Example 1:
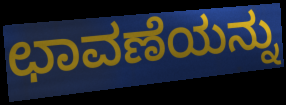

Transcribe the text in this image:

ಛಾವಣೆಯನ್ನು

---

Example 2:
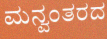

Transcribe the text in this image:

ಮನ್ವಂತರದ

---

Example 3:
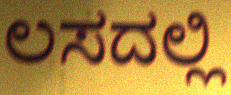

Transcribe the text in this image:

ಲಸದಲ್ಲಿ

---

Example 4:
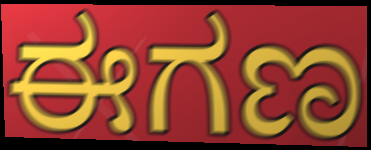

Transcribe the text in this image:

ಈಗಣ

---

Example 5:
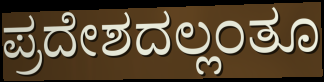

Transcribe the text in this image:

ಪ್ರದೇಶದಲ್ಲಂತೂ